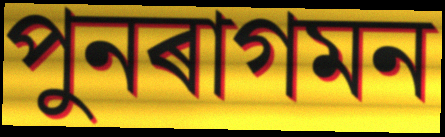
পুনৰাগমন